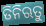
ତିନିଋତୁ